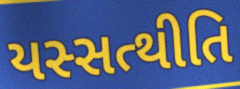
યસ્સત્થીતિ